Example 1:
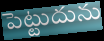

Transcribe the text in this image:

పెట్టుదును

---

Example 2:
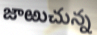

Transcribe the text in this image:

జాఱుచున్న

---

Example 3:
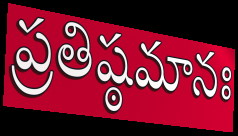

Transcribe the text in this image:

ప్రతిష్ఠమానః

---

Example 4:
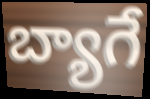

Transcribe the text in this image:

బ్యాగే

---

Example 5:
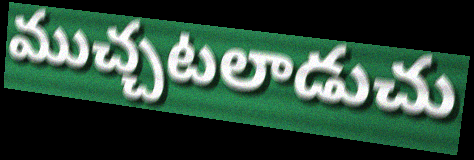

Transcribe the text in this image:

ముచ్చటలాడుచు